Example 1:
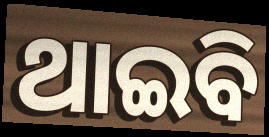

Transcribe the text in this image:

ଥାଇବି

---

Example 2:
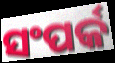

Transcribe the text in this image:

ସଂପର୍କ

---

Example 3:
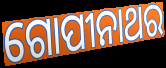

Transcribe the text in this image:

ଗୋପୀନାଥର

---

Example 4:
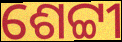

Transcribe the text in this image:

ଶେଟ୍ଟୀ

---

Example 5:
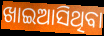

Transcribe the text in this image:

ଖାଇଆସିଥିବା